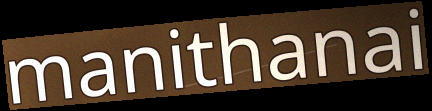
manithanai